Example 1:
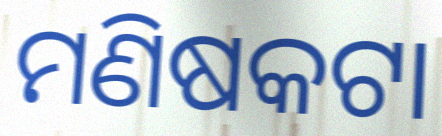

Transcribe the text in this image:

ମଣିଷକଟା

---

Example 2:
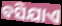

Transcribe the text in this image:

ବସିଯାଏ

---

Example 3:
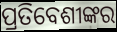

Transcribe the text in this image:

ପ୍ରତିବେଶୀଙ୍କର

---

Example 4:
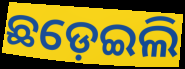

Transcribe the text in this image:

ଛଡ଼େଇଲି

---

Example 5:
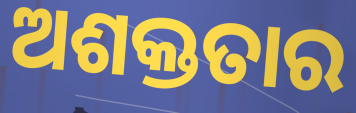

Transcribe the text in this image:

ଅଶକ୍ତତାର